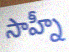
సాహ్నీ